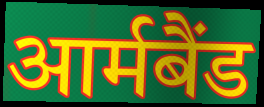
आर्मबैंड